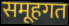
समूहगत